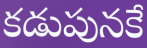
కడుపునకే